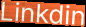
Linkdin